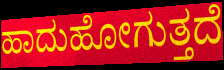
ಹಾದುಹೋಗುತ್ತದೆ